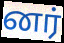
னர்